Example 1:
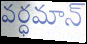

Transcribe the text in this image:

వర్ధమాన్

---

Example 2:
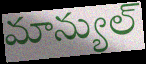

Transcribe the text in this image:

మాన్యుల్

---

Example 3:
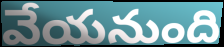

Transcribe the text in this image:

వేయనుంది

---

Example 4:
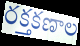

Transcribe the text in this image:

రక్తకణాల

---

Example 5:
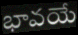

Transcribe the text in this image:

భావయే